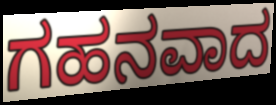
ಗಹನವಾದ